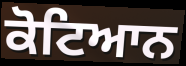
ਕੋਟਿਆਨ